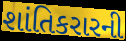
શાંતિકરારની